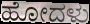
ಹೋದಳು